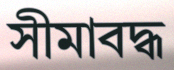
সীমাবদ্ধ